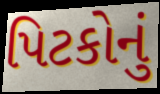
પિટકોનું